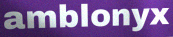
amblonyx